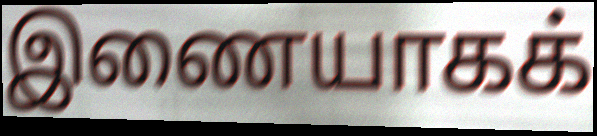
இணையாகக்